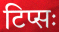
टिप्सः